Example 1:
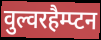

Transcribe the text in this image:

वुल्वरहैम्प्टन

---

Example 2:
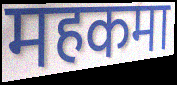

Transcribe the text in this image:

महकमा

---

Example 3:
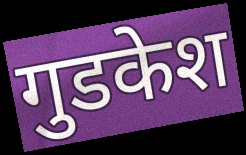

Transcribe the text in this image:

गुडकेश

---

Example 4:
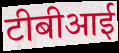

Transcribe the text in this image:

टीबीआई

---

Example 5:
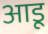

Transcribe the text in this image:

आडू